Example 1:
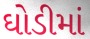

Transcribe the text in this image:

ઘોડીમાં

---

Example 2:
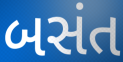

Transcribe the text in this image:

બસંત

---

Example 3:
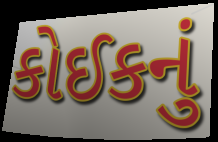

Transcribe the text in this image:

કોઈકનું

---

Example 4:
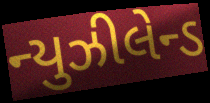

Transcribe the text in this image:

ન્યુઝીલેન્ડ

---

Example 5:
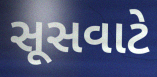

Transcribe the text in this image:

સૂસવાટે